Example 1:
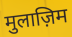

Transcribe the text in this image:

मुलाज़िम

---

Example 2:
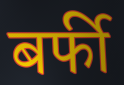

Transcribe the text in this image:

बर्फी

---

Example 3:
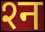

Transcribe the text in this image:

श्न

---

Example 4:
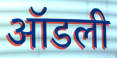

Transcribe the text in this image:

ऑडली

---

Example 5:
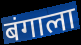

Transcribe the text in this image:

बंगाला